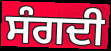
ਸੰਗਦੀ